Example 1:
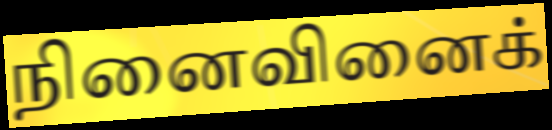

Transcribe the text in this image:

நினைவினைக்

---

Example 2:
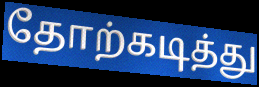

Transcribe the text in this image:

தோற்கடித்து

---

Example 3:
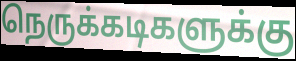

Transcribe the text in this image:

நெருக்கடிகளுக்கு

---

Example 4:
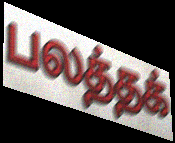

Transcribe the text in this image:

பலத்தக்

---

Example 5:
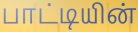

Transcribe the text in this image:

பாட்டியின்